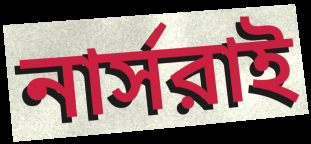
নার্সরাই